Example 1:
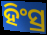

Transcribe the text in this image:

ହିଂସ୍ର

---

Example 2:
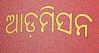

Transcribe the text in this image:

ଆଡ଼ମିସନ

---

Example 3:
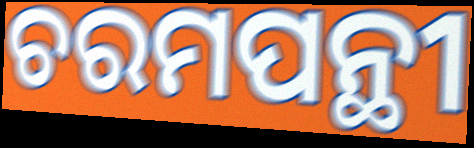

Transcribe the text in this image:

ଚରମପନ୍ଥୀ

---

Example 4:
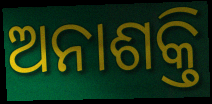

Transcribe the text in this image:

ଅନାଶକ୍ତି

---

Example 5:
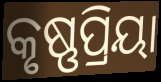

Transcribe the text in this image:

କୃଷ୍ଣପ୍ରିୟା